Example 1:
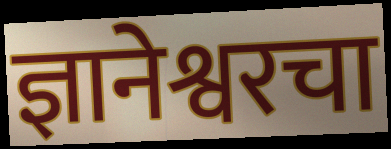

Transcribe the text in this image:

ज्ञानेश्वरचा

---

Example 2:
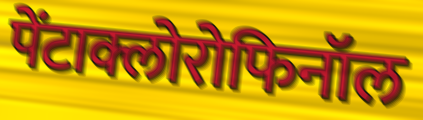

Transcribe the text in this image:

पेंटाक्लोरोफिनॉल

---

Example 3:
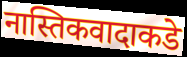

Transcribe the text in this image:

नास्तिकवादाकडे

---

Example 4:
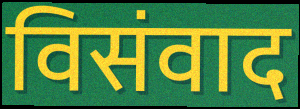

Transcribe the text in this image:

विसंवाद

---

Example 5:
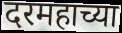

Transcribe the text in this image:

दरमहाच्या